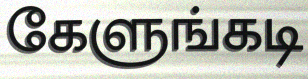
கேளுங்கடி